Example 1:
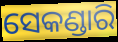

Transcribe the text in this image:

ସେକଣ୍ଡାରି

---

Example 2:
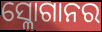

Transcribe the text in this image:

ସ୍ଳୋଗାନର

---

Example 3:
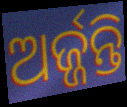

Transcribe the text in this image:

ଅର୍ଜ୍ଜନ୍ତି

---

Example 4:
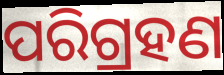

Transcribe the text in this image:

ପରିଗ୍ରହଣ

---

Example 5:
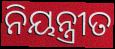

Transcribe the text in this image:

ନିୟନ୍ତ୍ରୀତ